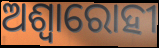
ଅଶ୍ଵାରୋହୀ